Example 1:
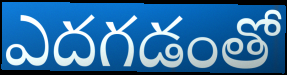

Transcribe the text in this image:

ఎదగడంతో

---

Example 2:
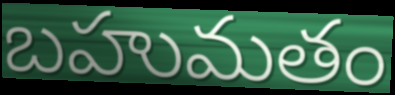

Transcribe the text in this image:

బహుమతం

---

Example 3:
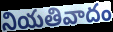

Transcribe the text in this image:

నియతివాదం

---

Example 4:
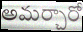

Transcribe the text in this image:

అమర్చారో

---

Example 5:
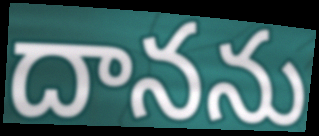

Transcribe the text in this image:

దానను